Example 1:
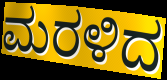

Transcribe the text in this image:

ಮರಳಿದ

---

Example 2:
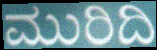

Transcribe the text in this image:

ಮುರಿದಿ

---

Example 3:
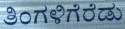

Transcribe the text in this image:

ತಿಂಗಳಿಗೆರೆಡು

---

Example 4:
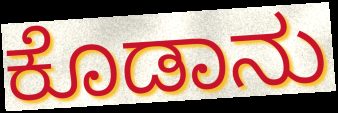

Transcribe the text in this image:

ಕೊಡಾನು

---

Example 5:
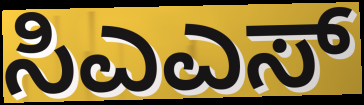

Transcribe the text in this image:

ಸಿಎಎಸ್